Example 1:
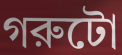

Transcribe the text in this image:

গরুটো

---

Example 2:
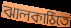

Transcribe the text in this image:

ঝালকাঠিতে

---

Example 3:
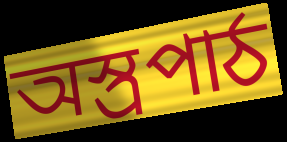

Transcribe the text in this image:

অস্ত্রপাঠ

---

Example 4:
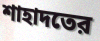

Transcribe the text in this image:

শাহাদতের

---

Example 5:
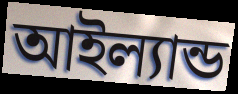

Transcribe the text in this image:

আইল্যান্ড